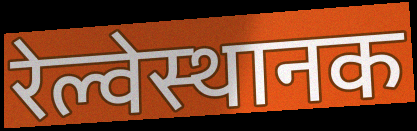
रेल्वेस्थानक